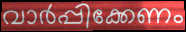
വാർപ്പിക്കേണം